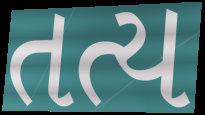
તત્ય